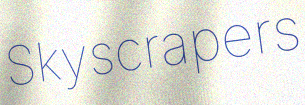
Skyscrapers